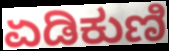
ಏಡಿಕುಣಿ